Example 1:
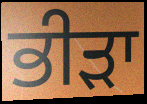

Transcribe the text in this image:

ਭੀੜਾ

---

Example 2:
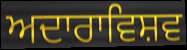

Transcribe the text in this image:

ਅਦਾਰਾਵਿਸ਼ਵ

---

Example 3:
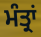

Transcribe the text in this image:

ਮੰਤ੍ਰਾਂ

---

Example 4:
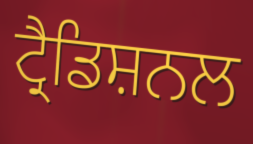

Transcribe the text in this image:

ਟ੍ਰੈਡਿਸ਼ਨਲ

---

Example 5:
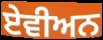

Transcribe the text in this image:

ਏਵੀਅਨ